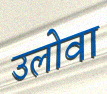
उलोवा